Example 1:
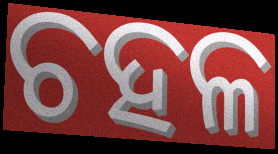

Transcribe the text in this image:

ଚହଳ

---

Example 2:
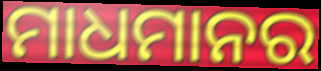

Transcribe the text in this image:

ମାଧମାନର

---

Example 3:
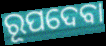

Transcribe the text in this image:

ରୂପଦେବା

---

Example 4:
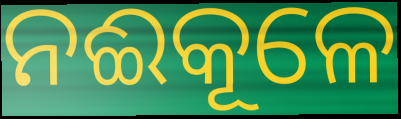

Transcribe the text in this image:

ନଈକୂଳେ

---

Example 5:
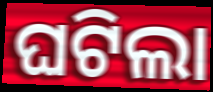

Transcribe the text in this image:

ଘଟିଲା